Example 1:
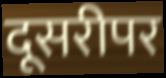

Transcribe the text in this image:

दूसरीपर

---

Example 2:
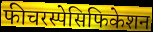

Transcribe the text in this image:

फीचरस्पेसिफिकेशन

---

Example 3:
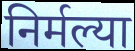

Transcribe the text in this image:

निर्मल्या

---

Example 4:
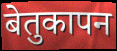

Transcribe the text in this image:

बेतुकापन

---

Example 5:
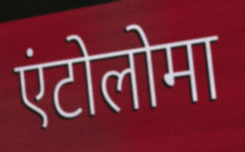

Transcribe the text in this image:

एंटोलोमा